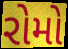
રોમો